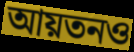
আয়তনও